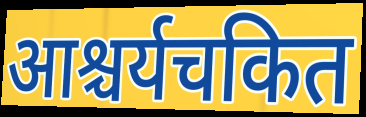
आश्चर्यचकित